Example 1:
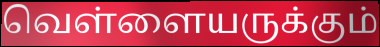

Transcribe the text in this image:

வெள்ளையருக்கும்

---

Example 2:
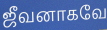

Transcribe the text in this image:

ஜீவனாகவே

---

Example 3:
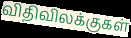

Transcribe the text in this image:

விதிவிலக்குகள்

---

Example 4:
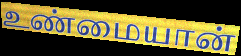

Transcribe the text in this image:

உண்மையான்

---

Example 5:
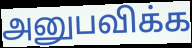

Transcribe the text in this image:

அனுபவிக்க